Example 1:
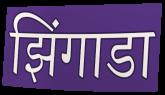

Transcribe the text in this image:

झिंगाडा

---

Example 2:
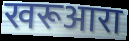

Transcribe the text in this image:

खरूआरा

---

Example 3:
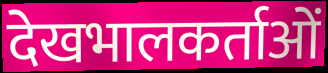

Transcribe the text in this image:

देखभालकर्ताओं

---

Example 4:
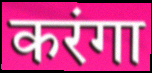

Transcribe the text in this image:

करंगा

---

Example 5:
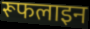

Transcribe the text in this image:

रूफलाइन